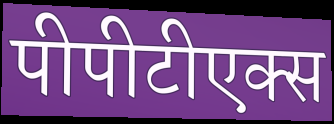
पीपीटीएक्स